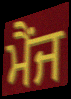
ਮੈਂਜ